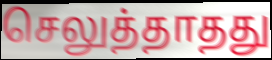
செலுத்தாதது